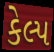
કેલ્પ